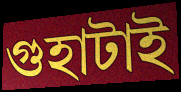
গুহাটাই